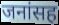
जनांसह